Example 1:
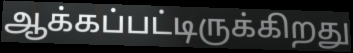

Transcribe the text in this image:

ஆக்கப்பட்டிருக்கிறது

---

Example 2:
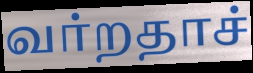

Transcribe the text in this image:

வர்றதாச்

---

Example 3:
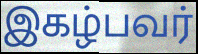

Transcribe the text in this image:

இகழ்பவர்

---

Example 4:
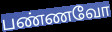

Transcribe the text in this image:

பண்ணவோ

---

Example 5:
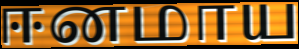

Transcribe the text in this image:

ஈனமாய